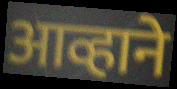
आव्हाने